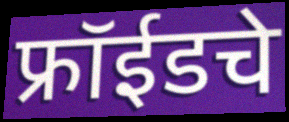
फ्रॉईडचे